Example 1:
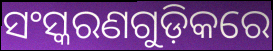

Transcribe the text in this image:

ସଂସ୍କରଣଗୁଡ଼ିକରେ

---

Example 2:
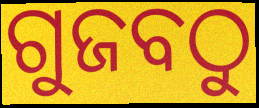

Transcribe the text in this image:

ଗୁଜବଠୁ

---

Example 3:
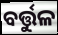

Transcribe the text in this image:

ବର୍ତ୍ତୁଳ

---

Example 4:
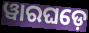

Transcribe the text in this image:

ୱାରଘଡ଼େ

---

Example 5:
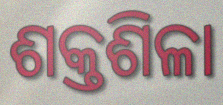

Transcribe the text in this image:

ଶକ୍ତଶିଳା